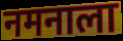
नमनाला